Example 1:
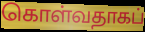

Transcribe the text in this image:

கொள்வதாகப்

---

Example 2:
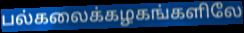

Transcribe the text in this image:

பல்கலைக்கழகங்களிலே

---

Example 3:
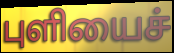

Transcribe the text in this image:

புளியைச்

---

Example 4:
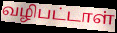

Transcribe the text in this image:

வழிபட்டாள்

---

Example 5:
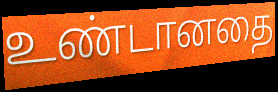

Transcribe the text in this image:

உண்டானதை